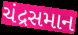
ચંદ્રસમાન